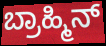
ಬ್ರಾಹ್ಮಿನ್